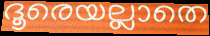
ദൂരെയല്ലാതെ